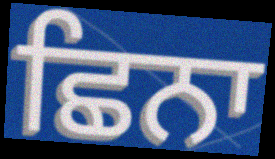
ਛਿਨਾ